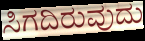
ಸಿಗದಿರುವುದು